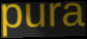
pura